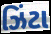
ઝિંટા